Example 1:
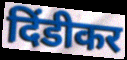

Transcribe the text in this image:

दिंडीकर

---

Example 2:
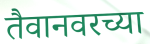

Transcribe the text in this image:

तैवानवरच्या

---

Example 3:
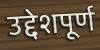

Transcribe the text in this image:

उद्देशपूर्ण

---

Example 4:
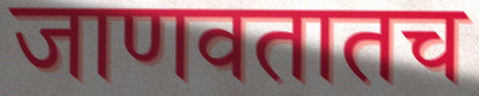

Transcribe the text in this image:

जाणवतातच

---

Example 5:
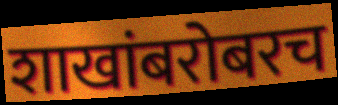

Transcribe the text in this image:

शाखांबरोबरच